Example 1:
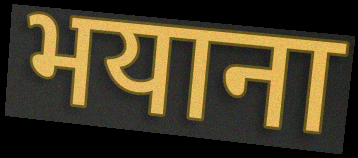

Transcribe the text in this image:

भयाना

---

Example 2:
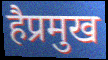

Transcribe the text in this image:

हैप्रमुख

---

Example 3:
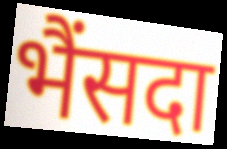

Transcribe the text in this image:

भैंसदा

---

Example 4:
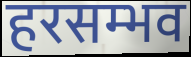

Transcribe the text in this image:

हरसम्भव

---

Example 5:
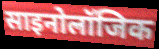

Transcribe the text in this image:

साइनोलॉजिक